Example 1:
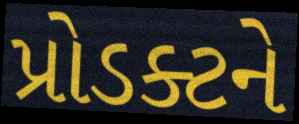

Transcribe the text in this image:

પ્રોડક્ટને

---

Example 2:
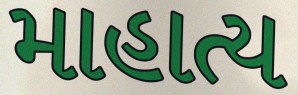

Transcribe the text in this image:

માહાત્ય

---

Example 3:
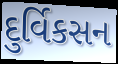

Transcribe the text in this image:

દુર્વિકસન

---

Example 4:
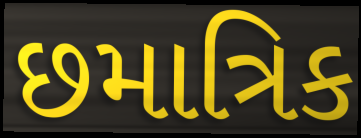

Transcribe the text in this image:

છમાત્રિક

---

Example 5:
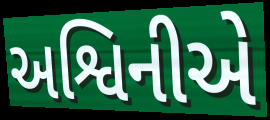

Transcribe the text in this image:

અશ્વિનીએ